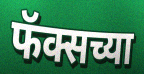
फॅक्सच्या